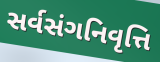
સર્વસંગનિવૃત્તિ